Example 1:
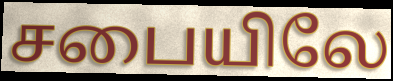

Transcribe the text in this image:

சபையிலே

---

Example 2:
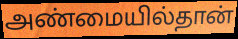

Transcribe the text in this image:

அண்மையில்தான்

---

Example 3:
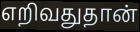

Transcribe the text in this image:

எறிவதுதான்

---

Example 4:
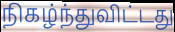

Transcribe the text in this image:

நிகழ்ந்துவிட்டது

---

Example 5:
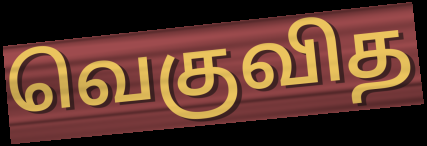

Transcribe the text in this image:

வெகுவித